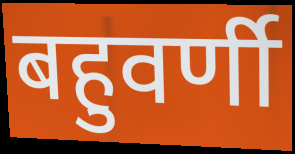
बहुवर्णी